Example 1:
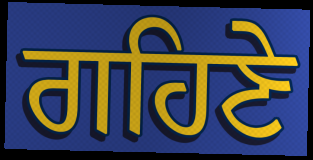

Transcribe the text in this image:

ਗਹਿਣੇ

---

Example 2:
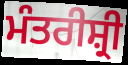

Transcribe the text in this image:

ਮੰਤਰੀਸ਼੍ਰੀ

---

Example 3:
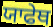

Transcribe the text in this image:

ਯਾਫੇਥ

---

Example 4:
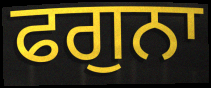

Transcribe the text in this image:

ਫਗੁਨਾ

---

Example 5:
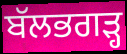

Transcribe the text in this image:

ਬੱਲਭਗੜ੍ਹ